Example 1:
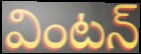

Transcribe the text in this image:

వింటన్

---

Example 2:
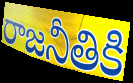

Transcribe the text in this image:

రాజనీతికి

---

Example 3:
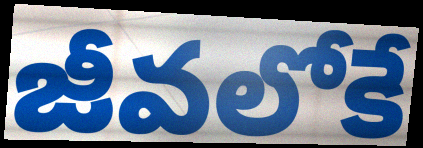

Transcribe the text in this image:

జీవలోకే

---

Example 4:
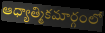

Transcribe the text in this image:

ఆధ్యాత్మికమార్గంలో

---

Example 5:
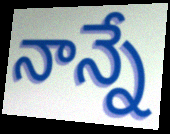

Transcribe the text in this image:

నాన్నే